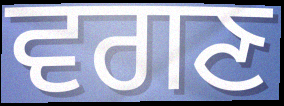
ਵਗਣ